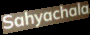
Sahyachala